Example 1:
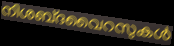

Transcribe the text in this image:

നിശബ്‌ദവൈറസുകൾ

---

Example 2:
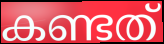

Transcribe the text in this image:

കണ്ടത്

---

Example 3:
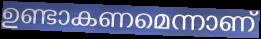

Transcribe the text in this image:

ഉണ്ടാകണമെന്നാണ്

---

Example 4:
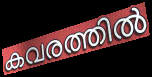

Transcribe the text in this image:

കവരത്തിൽ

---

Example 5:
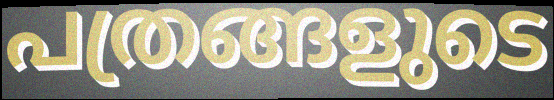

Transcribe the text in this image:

പത്രങ്ങളുടെ